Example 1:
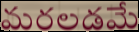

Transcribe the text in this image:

మరలడమే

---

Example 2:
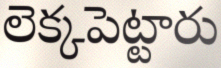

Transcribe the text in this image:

లెక్కపెట్టారు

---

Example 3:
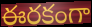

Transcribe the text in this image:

ఈరకంగా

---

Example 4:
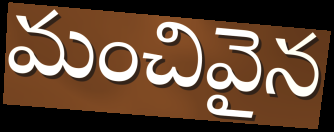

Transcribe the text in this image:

మంచివైన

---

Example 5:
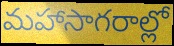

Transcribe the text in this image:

మహాసాగరాల్లో